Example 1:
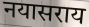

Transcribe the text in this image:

नयासराय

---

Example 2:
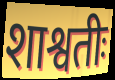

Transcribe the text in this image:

शाश्वतीः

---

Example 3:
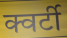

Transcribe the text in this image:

क्वर्टी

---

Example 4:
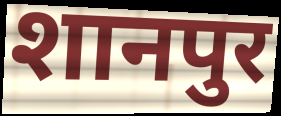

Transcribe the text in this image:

शानपुर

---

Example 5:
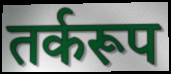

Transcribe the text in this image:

तर्करूप